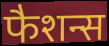
फैशन्स